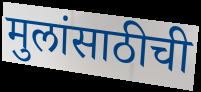
मुलांसाठीची